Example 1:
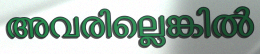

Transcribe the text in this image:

അവരില്ലെങ്കിൽ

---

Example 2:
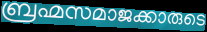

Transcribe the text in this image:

ബ്രഹ്മസമാജക്കാരുടെ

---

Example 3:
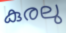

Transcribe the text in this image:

കുരലു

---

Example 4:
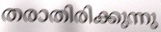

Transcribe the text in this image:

തരാതിരിക്കുന്നു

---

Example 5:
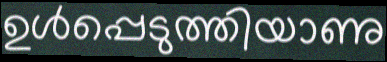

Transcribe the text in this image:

ഉൾപ്പെടുത്തിയാണു